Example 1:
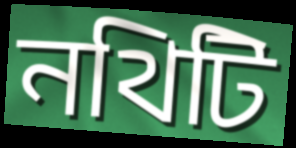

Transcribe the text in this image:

নথিটি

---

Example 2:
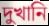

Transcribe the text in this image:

দুখানি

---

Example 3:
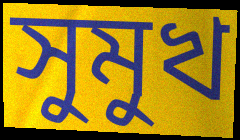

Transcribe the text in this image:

সুমুখ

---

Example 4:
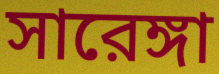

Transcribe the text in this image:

সারেঙ্গা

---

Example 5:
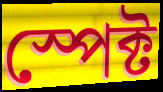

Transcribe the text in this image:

স্পেক্ট